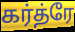
கர்த்ரே